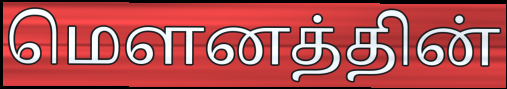
மௌனத்தின்